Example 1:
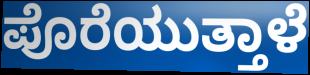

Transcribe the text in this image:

ಪೊರೆಯುತ್ತಾಳೆ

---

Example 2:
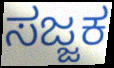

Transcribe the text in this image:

ಸಜ್ಜಕ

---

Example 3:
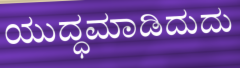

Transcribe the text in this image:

ಯುದ್ಧಮಾಡಿದುದು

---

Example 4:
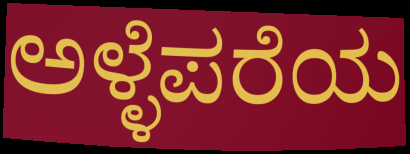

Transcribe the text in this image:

ಅಳ್ಳೆಪರೆಯ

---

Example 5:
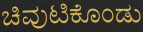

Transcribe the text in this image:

ಚಿವುಟಿಕೊಂಡು